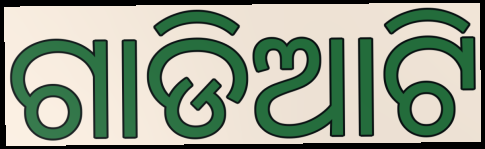
ଗାଡିଆଟି